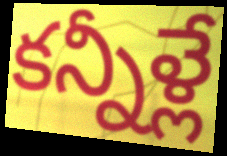
కన్నీళ్లే